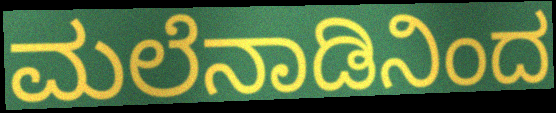
ಮಲೆನಾಡಿನಿಂದ